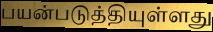
பயன்படுத்தியுள்ளது